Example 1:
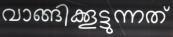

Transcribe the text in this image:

വാങ്ങിക്കൂട്ടുന്നത്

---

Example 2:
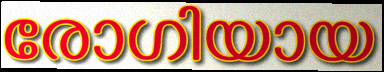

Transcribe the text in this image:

രോഗിയായ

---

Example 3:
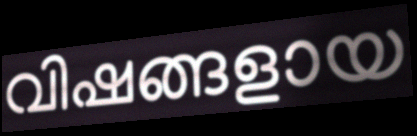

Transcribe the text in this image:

വിഷങ്ങളായ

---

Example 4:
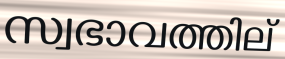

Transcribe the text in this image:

സ്വഭാവത്തില്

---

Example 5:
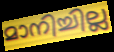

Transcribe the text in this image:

മാനിച്ചില്ല